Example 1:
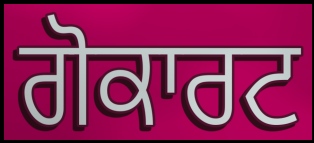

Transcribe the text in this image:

ਗੋਕਾਰਟ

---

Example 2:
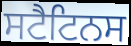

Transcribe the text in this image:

ਸਟੈਟਿਨਸ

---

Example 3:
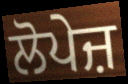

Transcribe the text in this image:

ਲੋਪੇਜ਼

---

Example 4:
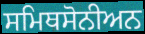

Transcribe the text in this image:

ਸਮਿਥਸੋਨੀਅਨ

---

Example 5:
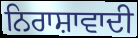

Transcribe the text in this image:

ਨਿਰਾਸ਼ਾਵਾਦੀ